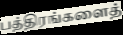
பத்திரங்களைத்